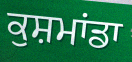
ਕੁਸ਼ਮਾਂਡਾ